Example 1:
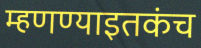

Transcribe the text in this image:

म्हणण्याइतकंच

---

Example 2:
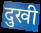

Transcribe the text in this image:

दुखी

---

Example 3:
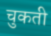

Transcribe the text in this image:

चुकती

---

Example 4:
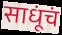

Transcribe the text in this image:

साधूंचं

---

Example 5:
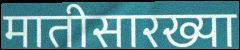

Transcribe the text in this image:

मातीसारख्या